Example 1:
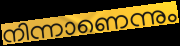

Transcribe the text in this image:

നിന്നാണെന്നും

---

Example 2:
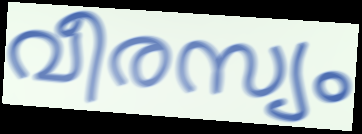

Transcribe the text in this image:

വീരസ്യം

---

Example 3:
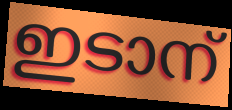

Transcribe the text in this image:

ഇടാന്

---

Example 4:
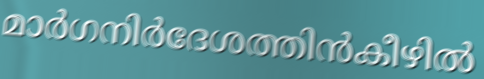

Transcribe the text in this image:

മാർഗനിർദേശത്തിൻകീഴിൽ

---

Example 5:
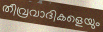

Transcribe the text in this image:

തീവ്രവാദികളെയും